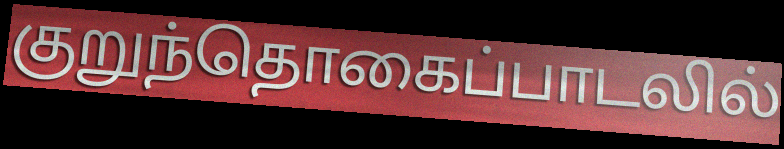
குறுந்தொகைப்பாடலில்